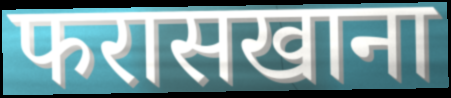
फरासखाना